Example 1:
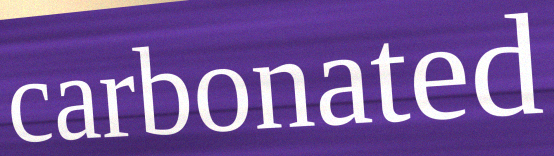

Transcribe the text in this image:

carbonated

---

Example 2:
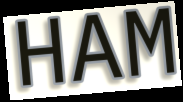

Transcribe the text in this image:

HAM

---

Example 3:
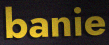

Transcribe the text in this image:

banie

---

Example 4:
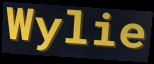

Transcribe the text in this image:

Wylie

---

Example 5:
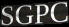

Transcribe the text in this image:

SGPC